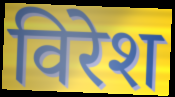
विरेश